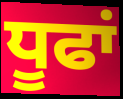
ਧੂਫਾਂ